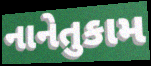
નાનેતુકામ